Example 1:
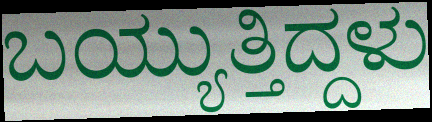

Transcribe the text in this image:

ಬಯ್ಯುತ್ತಿದ್ದಳು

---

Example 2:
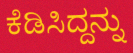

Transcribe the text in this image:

ಕೆಡಿಸಿದ್ದನ್ನು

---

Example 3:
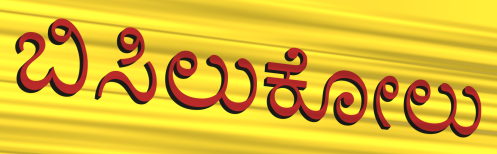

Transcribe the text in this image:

ಬಿಸಿಲುಕೋಲು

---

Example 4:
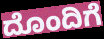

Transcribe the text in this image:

ದೊಂದಿಗೆ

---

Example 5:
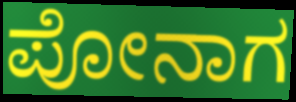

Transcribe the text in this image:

ಪೋನಾಗ